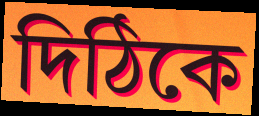
দিঠিকে